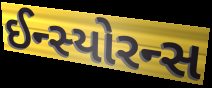
ઈન્સ્યોરન્સ